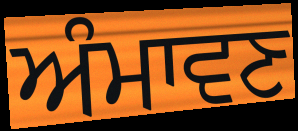
ਅੰਮਾਵਣ